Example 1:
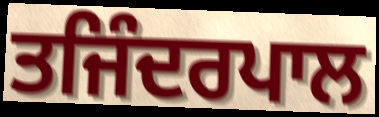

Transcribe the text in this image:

ਤਜਿੰਦਰਪਾਲ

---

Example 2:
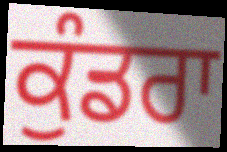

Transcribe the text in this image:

ਕੁੰਡਰਾ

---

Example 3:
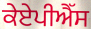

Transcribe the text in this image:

ਕੇਏਪੀਐੱਸ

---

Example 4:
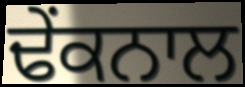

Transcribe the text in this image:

ਢੇਂਕਨਾਲ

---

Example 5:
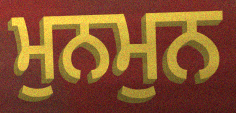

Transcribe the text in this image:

ਮੁਨਮੁਨ